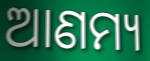
ଆଣମ୍ୟ